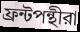
ফ্রন্টপন্থীরা